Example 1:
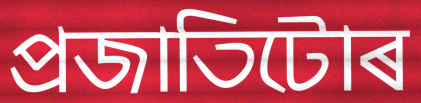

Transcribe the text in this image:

প্ৰজাতিটোৰ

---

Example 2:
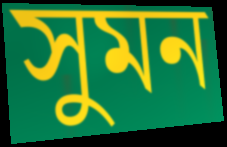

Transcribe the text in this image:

সুমন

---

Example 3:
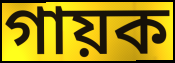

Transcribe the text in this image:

গায়ক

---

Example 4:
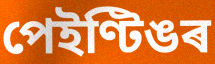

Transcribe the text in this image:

পেইণ্টিঙৰ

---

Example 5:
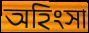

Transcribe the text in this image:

অহিংসা